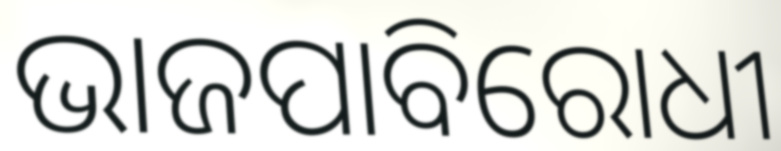
ଭାଜପାବିରୋଧୀ